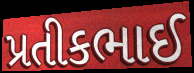
પ્રતીકભાઈ